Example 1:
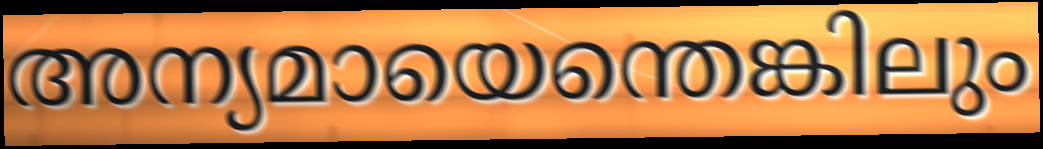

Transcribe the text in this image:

അന്യമായെന്തെങ്കിലും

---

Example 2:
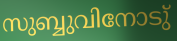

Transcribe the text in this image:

സുബ്ബുവിനോടു്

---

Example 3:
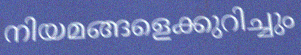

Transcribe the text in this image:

നിയമങ്ങളെക്കുറിച്ചും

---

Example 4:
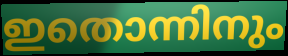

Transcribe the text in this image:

ഇതൊന്നിനും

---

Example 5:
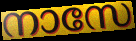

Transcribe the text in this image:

നാസേ